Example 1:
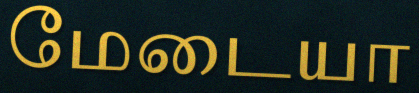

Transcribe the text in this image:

மேடையா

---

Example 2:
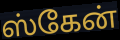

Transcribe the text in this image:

ஸ்கேன்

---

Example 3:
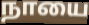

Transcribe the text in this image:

நாயை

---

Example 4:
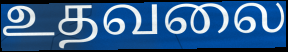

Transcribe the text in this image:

உதவலை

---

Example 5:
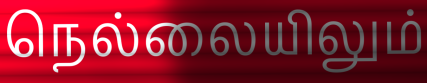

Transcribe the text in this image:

நெல்லையிலும்